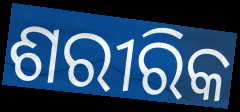
ଶରୀରିକ